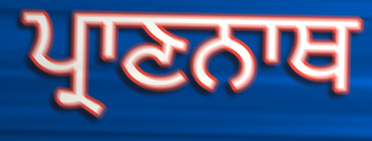
ਪ੍ਰਾਣਨਾਥ